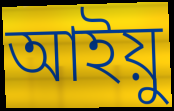
আইয়ু